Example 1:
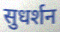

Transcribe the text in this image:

सुधर्शन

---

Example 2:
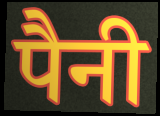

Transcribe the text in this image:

पैनी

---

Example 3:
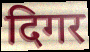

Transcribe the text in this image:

दिगर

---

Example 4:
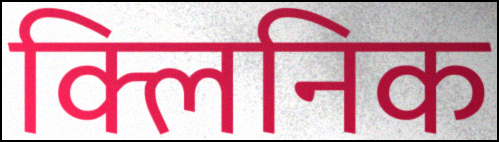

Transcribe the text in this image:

क्लिनिक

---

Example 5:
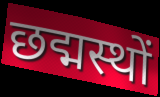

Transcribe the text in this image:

छद्मस्थों